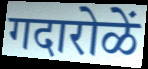
गदारोळें